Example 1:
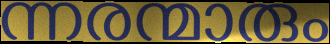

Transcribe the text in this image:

ന്നരന്മാരും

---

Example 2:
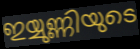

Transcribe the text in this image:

ഇയ്യുണ്ണിയുടെ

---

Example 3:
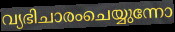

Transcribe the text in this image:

വ്യഭിചാരംചെയ്യുന്നോ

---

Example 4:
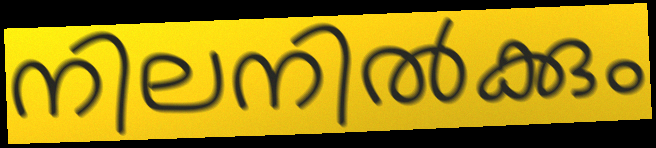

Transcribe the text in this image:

നിലനിൽക്കും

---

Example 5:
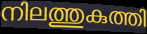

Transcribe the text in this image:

നിലത്തുകുത്തി